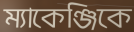
ম্যাকেঞ্জিকে